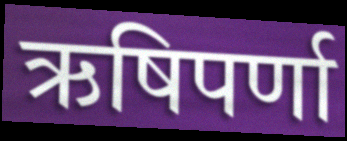
ऋषिपर्णा